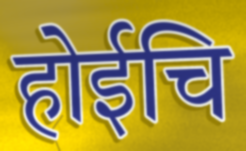
होईचि